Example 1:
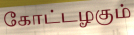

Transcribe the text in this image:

கோட்டழகும்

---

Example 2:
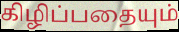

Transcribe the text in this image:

கிழிப்பதையும்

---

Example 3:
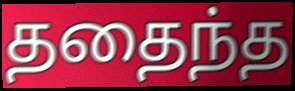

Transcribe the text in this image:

ததைந்த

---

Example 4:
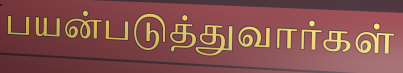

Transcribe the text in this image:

பயன்படுத்துவார்கள்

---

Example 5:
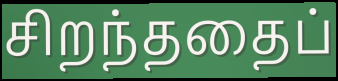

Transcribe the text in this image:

சிறந்ததைப்